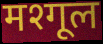
मश्गूल